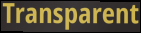
Transparent